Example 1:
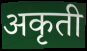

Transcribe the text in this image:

अकृती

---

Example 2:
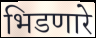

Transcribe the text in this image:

भिडणारे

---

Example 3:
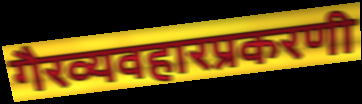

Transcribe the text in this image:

गैरव्यवहारप्रकरणी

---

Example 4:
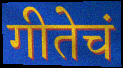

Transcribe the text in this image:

गीतेचं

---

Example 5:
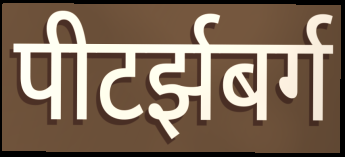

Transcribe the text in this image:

पीटर्झबर्ग